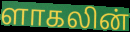
ளாகலின்